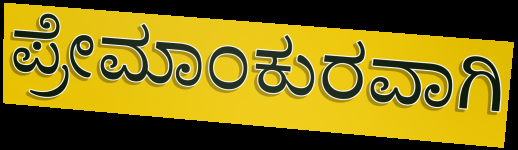
ಪ್ರೇಮಾಂಕುರವಾಗಿ